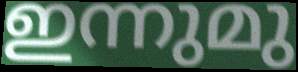
ഇന്നുമു